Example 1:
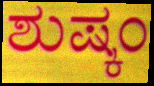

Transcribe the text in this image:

ಶುಷ್ಕಂ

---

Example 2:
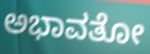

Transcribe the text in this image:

ಅಭಾವತೋ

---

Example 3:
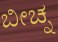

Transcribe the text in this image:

ಬೀಚ್ನ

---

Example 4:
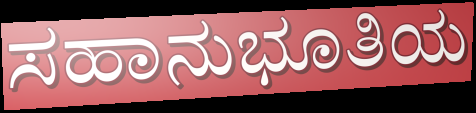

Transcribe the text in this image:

ಸಹಾನುಭೂತಿಯ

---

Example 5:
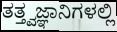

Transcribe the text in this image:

ತತ್ತ್ವಜ್ಞಾನಿಗಳಲ್ಲಿ